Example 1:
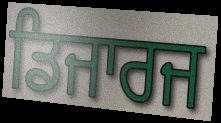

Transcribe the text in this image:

ਡਿਜਾਰਜ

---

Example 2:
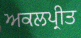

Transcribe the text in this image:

ਅਕਲਪ੍ਰੀਤ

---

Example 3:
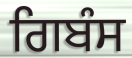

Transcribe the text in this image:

ਗਿਬੰਸ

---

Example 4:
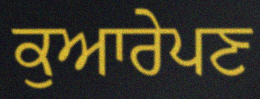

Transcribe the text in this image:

ਕੁਆਰੇਪਣ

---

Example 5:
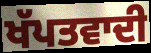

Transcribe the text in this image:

ਖੱਪਤਵਾਦੀ